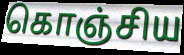
கொஞ்சிய